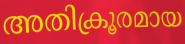
അതിക്രൂരമായ